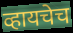
व्हायचेच